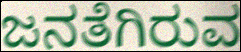
ಜನತೆಗಿರುವ